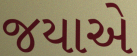
જયાએ